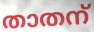
താതന്